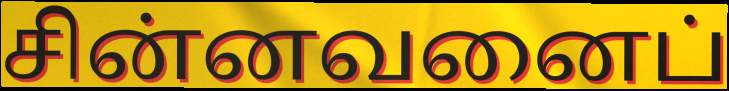
சின்னவனைப்